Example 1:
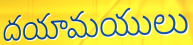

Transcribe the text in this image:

దయామయులు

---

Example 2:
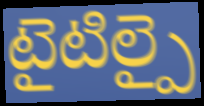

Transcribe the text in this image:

టైటిల్పై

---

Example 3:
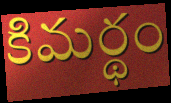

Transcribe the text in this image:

కిమర్థం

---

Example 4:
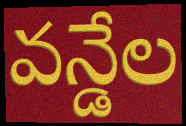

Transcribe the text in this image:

వన్డేల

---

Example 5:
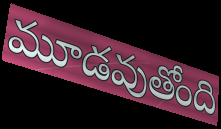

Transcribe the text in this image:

మూడవుతోంది